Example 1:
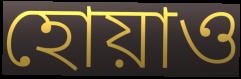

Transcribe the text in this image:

হোয়াও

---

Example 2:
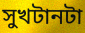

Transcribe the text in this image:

সুখটানটা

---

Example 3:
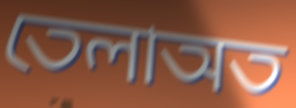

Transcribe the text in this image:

তেলাঅত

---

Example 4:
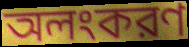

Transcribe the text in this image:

অলংকরণ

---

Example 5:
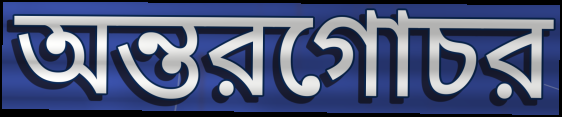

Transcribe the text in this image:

অন্তরগোচর